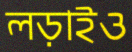
লড়াইও